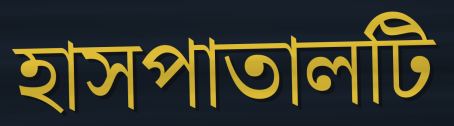
হাসপাতালটি